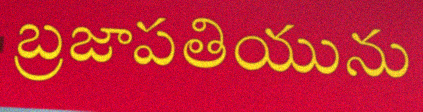
బ్రజాపతియును